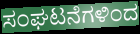
ಸಂಘಟನೆಗಳಿಂದ